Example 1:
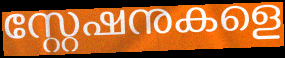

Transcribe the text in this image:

സ്റ്റേഷനുകളെ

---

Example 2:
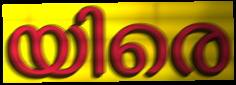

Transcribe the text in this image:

യിരെ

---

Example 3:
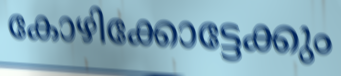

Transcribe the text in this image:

കോഴിക്കോട്ടേക്കും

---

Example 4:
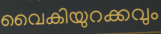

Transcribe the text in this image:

വൈകിയുറക്കവും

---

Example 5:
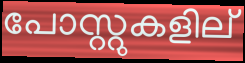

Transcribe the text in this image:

പോസ്റ്റുകളില്